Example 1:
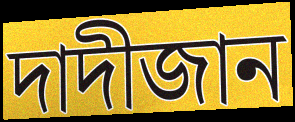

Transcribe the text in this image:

দাদীজান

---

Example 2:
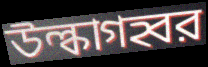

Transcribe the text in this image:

উল্কাগহ্বর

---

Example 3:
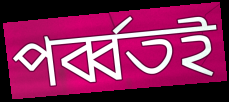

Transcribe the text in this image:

পর্ব্বতই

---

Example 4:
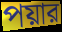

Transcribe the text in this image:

পয়ার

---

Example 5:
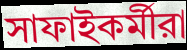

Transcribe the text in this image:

সাফাইকর্মীরা